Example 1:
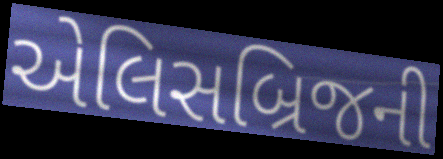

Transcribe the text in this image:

એલિસબ્રિજની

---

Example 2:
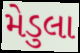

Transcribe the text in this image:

મેડુલા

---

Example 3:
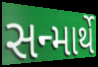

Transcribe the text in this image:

સન્માર્થે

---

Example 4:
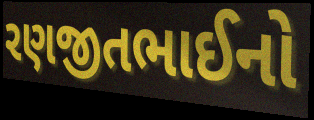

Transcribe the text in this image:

રણજીતભાઈનો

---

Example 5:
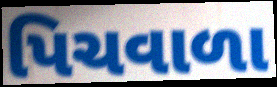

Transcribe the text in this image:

પિચવાળા